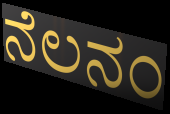
ನೆಲನಂ